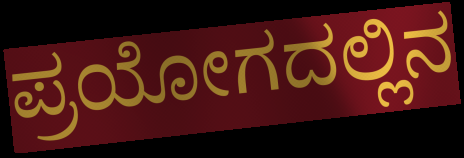
ಪ್ರಯೋಗದಲ್ಲಿನ